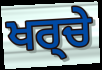
ਖਰ੍ਚੇ